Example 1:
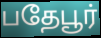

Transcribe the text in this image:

பதேபூர்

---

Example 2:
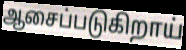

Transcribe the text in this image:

ஆசைப்படுகிறாய்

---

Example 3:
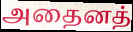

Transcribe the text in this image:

அதைனத்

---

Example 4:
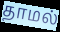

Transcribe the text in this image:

தாமல்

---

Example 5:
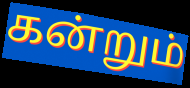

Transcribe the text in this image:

கன்றும்